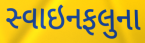
સ્વાઇનફલુના